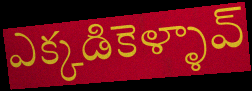
ఎక్కడికెళ్ళావ్